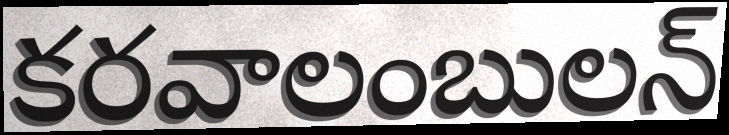
కరవాలంబులన్